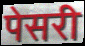
पेसरी